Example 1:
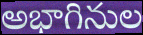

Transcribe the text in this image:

అభాగినుల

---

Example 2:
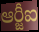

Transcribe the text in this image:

ఆర్జీఐ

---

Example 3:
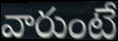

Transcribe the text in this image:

వారుంటే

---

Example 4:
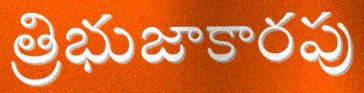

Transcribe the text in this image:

త్రిభుజాకారపు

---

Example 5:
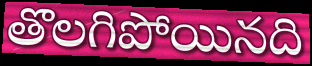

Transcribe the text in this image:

తొలగిపోయినది